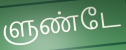
ளுண்டே